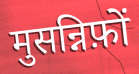
मुसन्निफ़ों